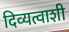
दिव्यत्वाशी